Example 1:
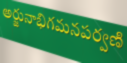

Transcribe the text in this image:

అర్జునాభిగమనపర్వణి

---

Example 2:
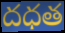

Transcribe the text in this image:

దధత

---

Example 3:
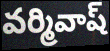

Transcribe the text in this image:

వర్మివాష్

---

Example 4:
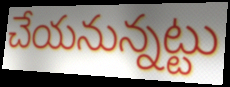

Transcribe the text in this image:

చేయనున్నట్టు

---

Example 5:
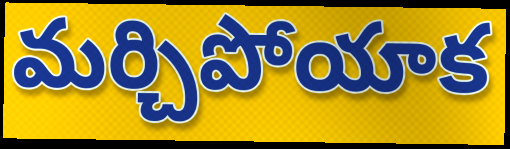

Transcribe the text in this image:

మర్చిపోయాక